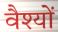
वैश्‍यों